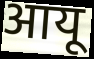
आयू